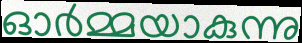
ഓർമ്മയാകുന്നു